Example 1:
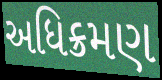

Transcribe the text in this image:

અધિક્રમણ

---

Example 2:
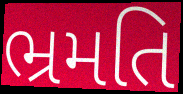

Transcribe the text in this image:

ભ્રમતિ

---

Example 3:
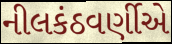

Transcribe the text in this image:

નીલકંઠવર્ણીએ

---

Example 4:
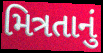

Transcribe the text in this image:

મિત્રતાનું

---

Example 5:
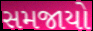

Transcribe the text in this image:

સમજાયો